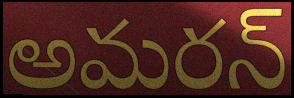
అమరన్